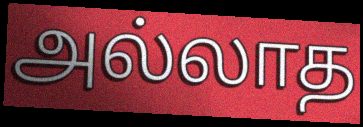
அல்லாத